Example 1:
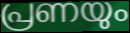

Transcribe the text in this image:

പ്രണയും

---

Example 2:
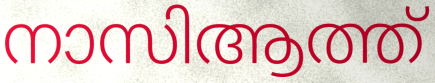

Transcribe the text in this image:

നാസിആത്ത്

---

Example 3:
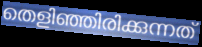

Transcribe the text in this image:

തെളിഞ്ഞിരിക്കുന്നത്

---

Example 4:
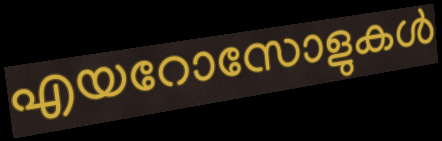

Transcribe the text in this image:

എയറോസോളുകൾ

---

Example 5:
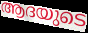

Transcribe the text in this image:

ആദയുടെ